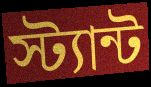
স্ট্যান্ট